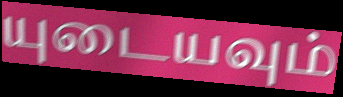
யுடையவும்